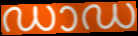
ഡാഡ